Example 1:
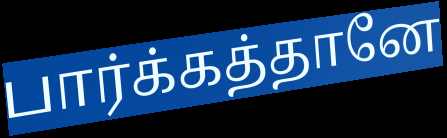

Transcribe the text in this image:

பார்க்கத்தானே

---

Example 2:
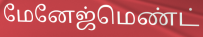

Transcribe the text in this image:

மேனேஜ்மெண்ட்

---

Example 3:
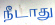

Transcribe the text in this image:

நீடாது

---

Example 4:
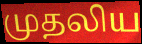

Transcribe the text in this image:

முதலிய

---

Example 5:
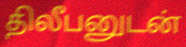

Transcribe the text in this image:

திலீபனுடன்